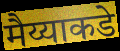
मैय्याकडे